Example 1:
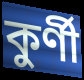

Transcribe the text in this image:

কুর্ণী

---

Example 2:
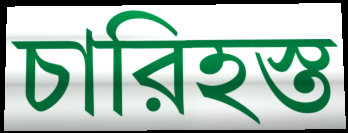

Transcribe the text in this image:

চারিহস্ত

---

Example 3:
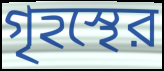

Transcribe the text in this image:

গৃহস্থের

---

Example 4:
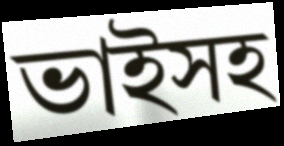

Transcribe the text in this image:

ভাইসহ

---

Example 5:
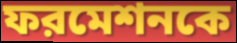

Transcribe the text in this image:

ফরমেশনকে